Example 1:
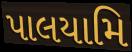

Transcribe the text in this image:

પાલયામિ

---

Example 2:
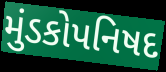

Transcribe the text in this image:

મુંડકોપનિષદ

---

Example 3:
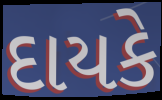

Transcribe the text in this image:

દાયકે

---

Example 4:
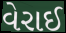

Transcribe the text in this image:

વેરાઈ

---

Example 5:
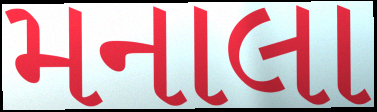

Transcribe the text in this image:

મનાલા